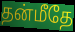
தன்மீதே